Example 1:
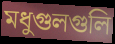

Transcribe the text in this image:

মধুগুলগুলি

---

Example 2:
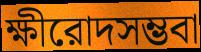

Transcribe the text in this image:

ক্ষীরোদসম্ভবা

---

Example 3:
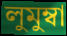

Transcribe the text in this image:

লুমুম্বা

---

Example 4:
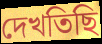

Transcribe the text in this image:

দেখতিছি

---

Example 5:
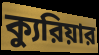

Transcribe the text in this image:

ক্যুরিয়ার